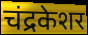
चंद्रकेशर